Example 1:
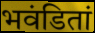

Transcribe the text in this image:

भवंडितां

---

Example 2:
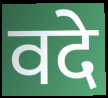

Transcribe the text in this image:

वदे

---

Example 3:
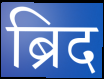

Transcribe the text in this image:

ब्रिद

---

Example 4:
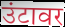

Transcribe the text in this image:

उंटावर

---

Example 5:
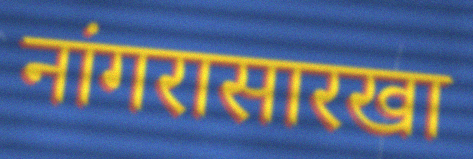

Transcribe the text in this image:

नांगरासारखा